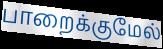
பாறைக்குமேல்